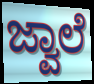
ಜ್ವಾಲೆ